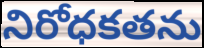
నిరోధకతను